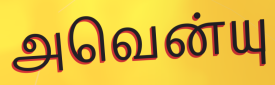
அவென்யு